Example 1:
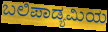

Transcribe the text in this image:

ಬಲಿಪಾಡ್ಯಮಿಯ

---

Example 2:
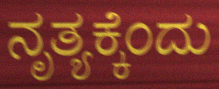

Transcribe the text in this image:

ನೃತ್ಯಕ್ಕೆಂದು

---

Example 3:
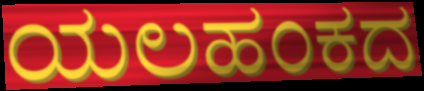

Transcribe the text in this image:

ಯಲಹಂಕದ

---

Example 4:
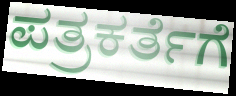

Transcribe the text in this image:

ಪತ್ರಕರ್ತೆಗೆ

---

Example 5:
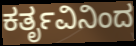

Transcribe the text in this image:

ಕರ್ತೃವಿನಿಂದ